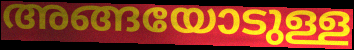
അങ്ങയോടുള്ള